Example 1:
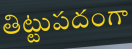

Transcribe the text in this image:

తిట్టుపదంగా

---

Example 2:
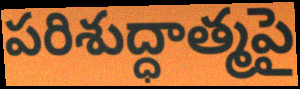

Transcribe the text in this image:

పరిశుద్ధాత్మపై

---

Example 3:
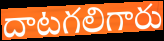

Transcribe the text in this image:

దాటగలిగారు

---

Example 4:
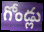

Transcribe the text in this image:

గోండ్లు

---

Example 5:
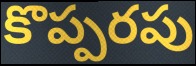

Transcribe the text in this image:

కొప్పరపు